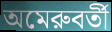
অমেরুবর্তী